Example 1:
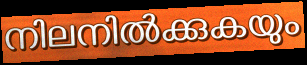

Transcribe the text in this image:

നിലനിൽക്കുകയും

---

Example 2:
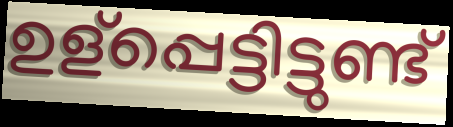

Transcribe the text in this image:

ഉള്പ്പെട്ടിട്ടുണ്ട്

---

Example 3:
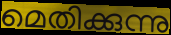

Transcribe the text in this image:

മെതിക്കുന്നു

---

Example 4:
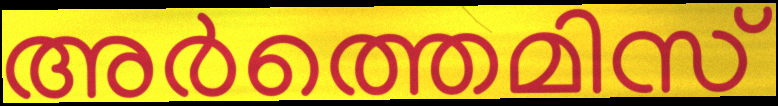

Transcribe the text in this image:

അർത്തെമിസ്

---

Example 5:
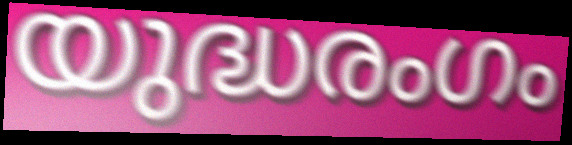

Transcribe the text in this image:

യുദ്ധരംഗം